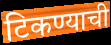
टिकण्याची